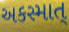
અકસ્માત્